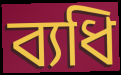
ব্যধি